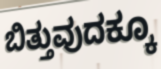
ಬಿತ್ತುವುದಕ್ಕೂ